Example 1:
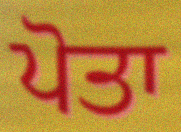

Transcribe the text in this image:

ਪੋਤਾ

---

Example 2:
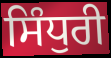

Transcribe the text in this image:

ਸਿੰਧੁਰੀ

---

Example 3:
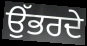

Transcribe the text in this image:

ਉੱਭਰਦੇ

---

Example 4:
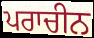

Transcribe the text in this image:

ਪਰਾਚੀਨ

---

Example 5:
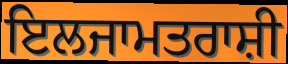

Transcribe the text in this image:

ਇਲਜਾਮਤਰਾਸ਼ੀ